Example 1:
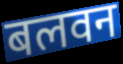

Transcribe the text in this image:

बलवन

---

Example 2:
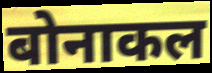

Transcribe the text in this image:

बोनाकल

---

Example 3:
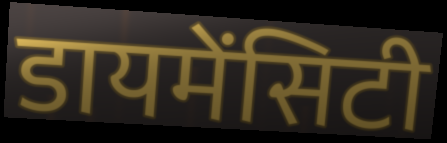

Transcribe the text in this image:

डायमेंसिटी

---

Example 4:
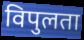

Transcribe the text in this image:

विपुलता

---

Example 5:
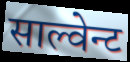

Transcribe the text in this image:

साल्वेन्ट